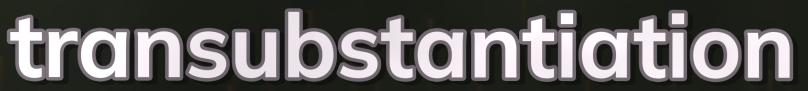
transubstantiation